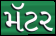
મૅટર